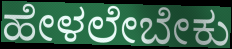
ಹೇಳಲೇಬೇಕು